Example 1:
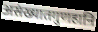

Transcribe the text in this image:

असंख्यातगुणहानि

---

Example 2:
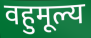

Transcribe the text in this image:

वहुमूल्य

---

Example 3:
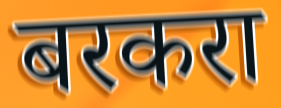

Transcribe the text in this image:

बरकरा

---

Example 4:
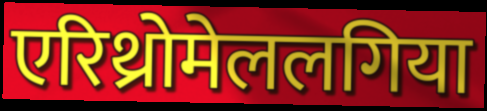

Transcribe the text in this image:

एरिथ्रोमेललगिया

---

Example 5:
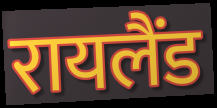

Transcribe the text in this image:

रायलैंड